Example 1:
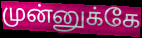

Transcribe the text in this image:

முன்னுக்கே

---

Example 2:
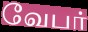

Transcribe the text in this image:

வேபர்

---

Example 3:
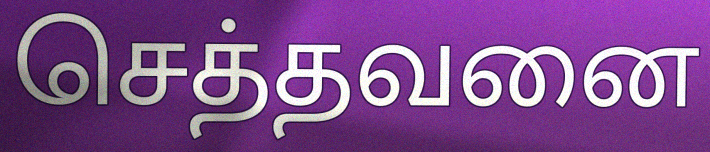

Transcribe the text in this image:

செத்தவனை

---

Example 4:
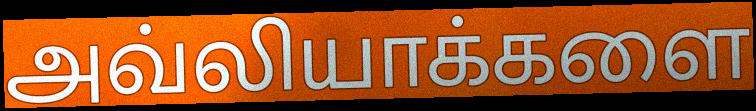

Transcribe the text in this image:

அவ்லியாக்களை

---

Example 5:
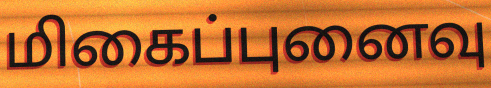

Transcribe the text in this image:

மிகைப்புனைவு